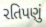
રતિપણું